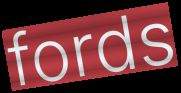
fords